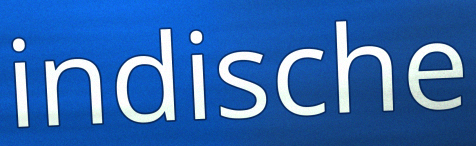
indische